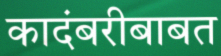
कादंबरीबाबत